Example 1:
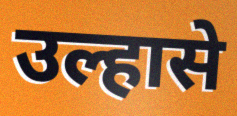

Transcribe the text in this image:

उल्हासे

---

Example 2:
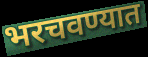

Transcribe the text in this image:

भरचवण्यात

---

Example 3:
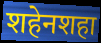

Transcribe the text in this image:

शहेनशहा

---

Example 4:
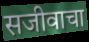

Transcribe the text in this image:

सजीवाचा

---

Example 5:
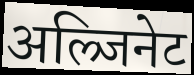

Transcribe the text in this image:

अल्जिनेट